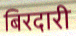
बिरदारी